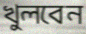
খুলবেন